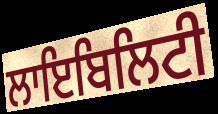
ਲਾਇਬਿਲਿਟੀ